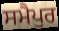
ਸਮੈਪੁਰ